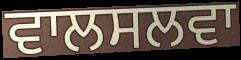
ਵਾਲਸਲਵਾ